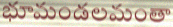
భూమండలమంతా